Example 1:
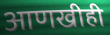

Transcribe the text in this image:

आणखीही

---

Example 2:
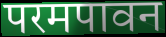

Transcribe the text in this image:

परमपावन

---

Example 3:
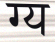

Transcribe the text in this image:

ग्य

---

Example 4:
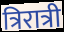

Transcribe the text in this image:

त्रिरात्री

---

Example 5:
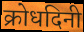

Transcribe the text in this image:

क्रोधदिनी